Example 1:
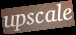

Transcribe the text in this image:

upscale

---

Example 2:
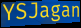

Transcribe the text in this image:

YSJagan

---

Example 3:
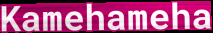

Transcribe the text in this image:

Kamehameha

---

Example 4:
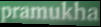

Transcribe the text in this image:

pramukha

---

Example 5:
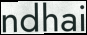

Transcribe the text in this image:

ndhai